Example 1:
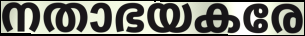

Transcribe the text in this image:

നതാഭയകരേ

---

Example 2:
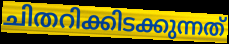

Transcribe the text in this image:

ചിതറിക്കിടക്കുന്നത്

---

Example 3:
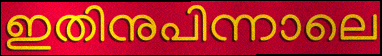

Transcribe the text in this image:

ഇതിനുപിന്നാലെ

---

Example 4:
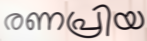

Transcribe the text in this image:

രണപ്രിയ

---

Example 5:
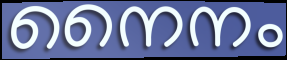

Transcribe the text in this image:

നൈനം